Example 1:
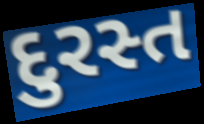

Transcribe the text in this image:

દુરસ્ત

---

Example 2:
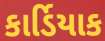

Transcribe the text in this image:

કાર્ડિયાક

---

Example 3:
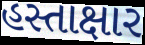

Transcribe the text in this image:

હસ્તાક્ષાર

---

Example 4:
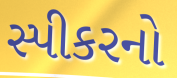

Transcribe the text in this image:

સ્પીકરનો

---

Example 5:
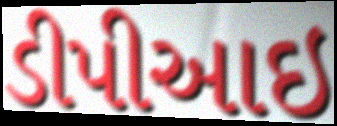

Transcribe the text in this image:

ડીપીઆઇ